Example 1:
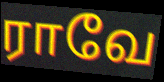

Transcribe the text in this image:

ராவே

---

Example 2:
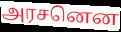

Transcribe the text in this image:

அரசனென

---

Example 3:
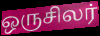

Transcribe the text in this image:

ஒருசிலர்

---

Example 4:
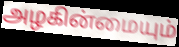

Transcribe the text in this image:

அழகின்மையும்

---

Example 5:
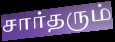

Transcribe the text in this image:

சார்தரும்